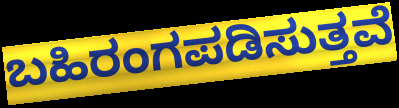
ಬಹಿರಂಗಪಡಿಸುತ್ತವೆ